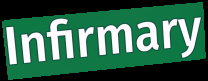
Infirmary